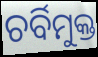
ଚର୍ବିମୁକ୍ତ